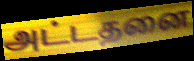
அட்டதனை